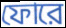
ফোরে